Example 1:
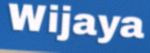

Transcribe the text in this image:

Wijaya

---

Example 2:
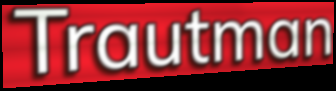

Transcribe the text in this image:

Trautman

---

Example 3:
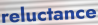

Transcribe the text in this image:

reluctance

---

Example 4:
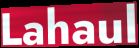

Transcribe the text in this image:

Lahaul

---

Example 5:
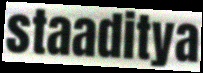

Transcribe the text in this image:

staaditya